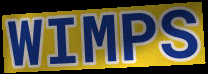
WIMPS